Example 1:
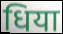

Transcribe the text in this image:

धिया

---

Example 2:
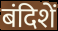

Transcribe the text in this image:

बंदिशें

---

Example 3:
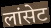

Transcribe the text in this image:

लांसेट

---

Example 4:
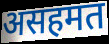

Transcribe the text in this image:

असहमत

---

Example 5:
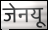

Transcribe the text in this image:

जेनयू